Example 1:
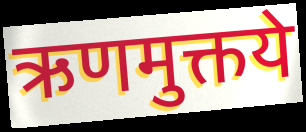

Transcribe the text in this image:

ऋणमुक्तये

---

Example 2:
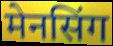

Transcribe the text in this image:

मेनसिंग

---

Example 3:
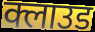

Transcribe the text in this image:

क्‍लाउड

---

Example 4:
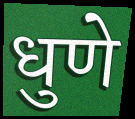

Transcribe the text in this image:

धुणे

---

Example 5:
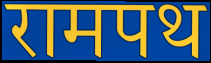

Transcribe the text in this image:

रामपथ